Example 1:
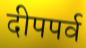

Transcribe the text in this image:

दीपपर्व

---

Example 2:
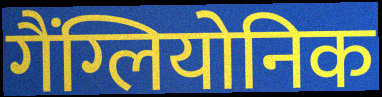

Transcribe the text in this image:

गैंग्लियोनिक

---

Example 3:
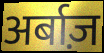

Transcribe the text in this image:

अर्बाज़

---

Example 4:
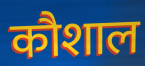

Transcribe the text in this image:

कौशाल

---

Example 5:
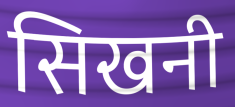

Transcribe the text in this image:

सिखनी